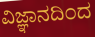
ವಿಜ್ಞಾನದಿಂದ